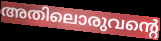
അതിലൊരുവന്റെ